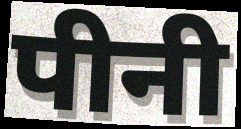
पीनी